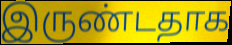
இருண்டதாக